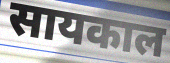
सायकाल